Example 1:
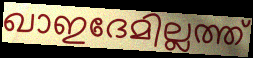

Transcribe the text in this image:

ഖാഇദേമില്ലത്ത്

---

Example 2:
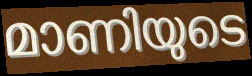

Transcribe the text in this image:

മാണിയുടെ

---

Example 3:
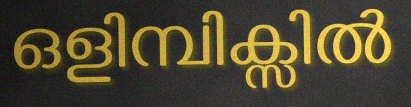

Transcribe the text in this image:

ഒളിമ്പിക്സിൽ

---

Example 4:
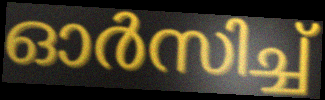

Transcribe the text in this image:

ഓർസിച്ച്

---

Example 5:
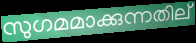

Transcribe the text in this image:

സുഗമമാക്കുന്നതില്